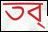
তব্